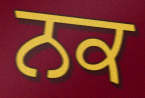
ਨਕ